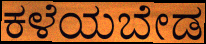
ಕಳೆಯಬೇಡ